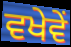
ਵਖੇਵੇਂ